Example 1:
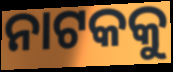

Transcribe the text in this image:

ନାଟକକୁ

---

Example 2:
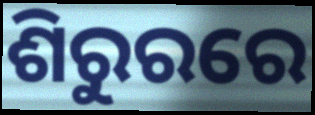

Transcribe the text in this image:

ଶିରୁରରେ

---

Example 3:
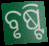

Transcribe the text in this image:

ବୃଷ୍ଟି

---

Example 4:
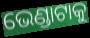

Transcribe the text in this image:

ଭେଣ୍ଡାଟାକୁ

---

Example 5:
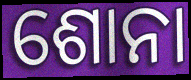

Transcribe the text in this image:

ଶୋନା